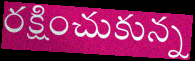
రక్షించుకున్న